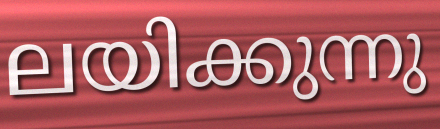
ലയിക്കുന്നു